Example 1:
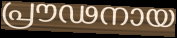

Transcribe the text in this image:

പ്രൗഢനായ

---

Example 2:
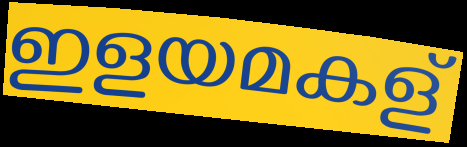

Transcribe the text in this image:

ഇളയമകള്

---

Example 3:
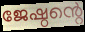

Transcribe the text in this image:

ജേഷ്ഠന്റെ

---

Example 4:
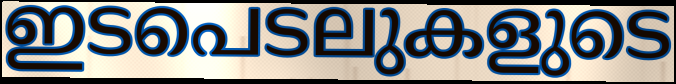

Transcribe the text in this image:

ഇടപെടലുകളുടെ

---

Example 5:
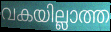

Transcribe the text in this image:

വകയില്ലാത്ത